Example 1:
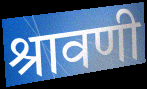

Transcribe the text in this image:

श्रावणी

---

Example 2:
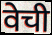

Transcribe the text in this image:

वेची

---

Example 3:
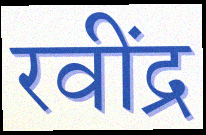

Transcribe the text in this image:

रवींद्र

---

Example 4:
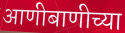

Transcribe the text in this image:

आणीबाणीच्या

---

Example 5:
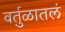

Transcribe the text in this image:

वर्तुळातलं